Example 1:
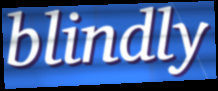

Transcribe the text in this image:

blindly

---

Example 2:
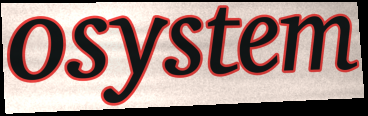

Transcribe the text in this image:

osystem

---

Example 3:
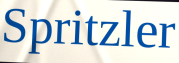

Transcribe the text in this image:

Spritzler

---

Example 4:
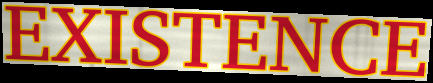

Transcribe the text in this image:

EXISTENCE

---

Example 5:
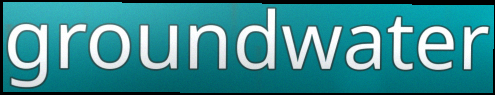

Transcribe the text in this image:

groundwater